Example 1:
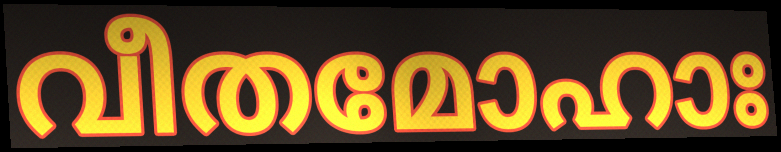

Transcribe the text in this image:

വീതമോഹാഃ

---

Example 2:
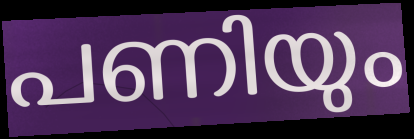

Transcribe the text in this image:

പണിയും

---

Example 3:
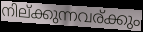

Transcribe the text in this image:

നില്ക്കുന്നവര്ക്കും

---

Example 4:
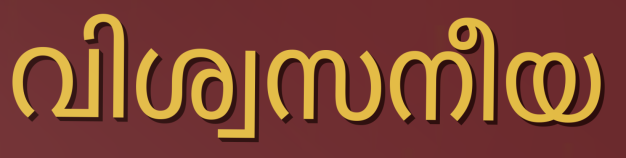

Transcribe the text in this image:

വിശ്വസനീയ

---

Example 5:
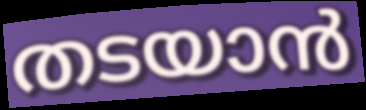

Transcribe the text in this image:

തടയാൻ